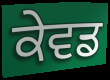
ਕੇਵਡ